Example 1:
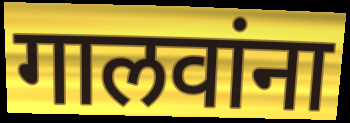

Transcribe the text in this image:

गालवांना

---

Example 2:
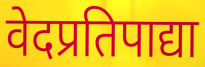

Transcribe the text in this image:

वेदप्रतिपाद्या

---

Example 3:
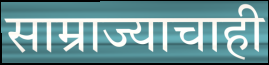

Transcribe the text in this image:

साम्राज्याचाही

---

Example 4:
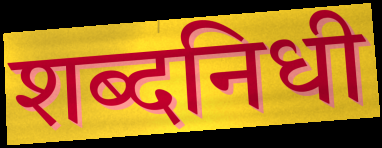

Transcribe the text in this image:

शब्दनिधी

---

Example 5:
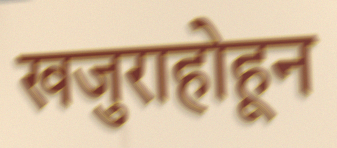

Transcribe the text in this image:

खजुराहोहून